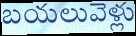
బయలువెళ్లు